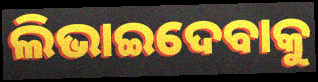
ଲିଭାଇଦେବାକୁ